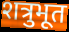
शत्रुभूत